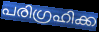
പരിഗ്രഹിക്ക